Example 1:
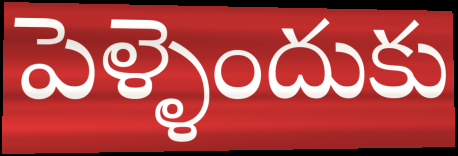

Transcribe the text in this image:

పెళ్ళెందుకు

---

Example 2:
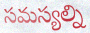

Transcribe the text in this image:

సమస్యల్ని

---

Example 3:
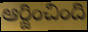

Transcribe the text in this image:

ఆర్జించింది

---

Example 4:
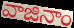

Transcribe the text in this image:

వాజినాం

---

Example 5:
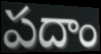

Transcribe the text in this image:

పదాం